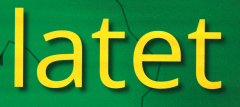
latet